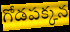
గోడపక్కన